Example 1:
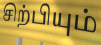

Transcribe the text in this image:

சிற்பியும்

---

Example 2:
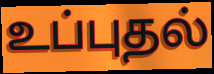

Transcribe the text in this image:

உப்புதல்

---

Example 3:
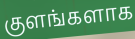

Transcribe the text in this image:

குளங்களாக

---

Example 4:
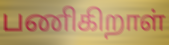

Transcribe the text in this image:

பணிகிறாள்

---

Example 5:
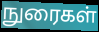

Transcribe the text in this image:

நுரைகள்